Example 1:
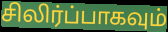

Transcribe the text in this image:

சிலிர்ப்பாகவும்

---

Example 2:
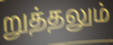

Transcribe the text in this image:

றுத்தலும்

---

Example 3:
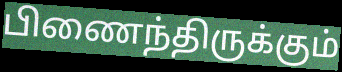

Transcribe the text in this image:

பிணைந்திருக்கும்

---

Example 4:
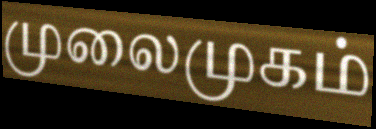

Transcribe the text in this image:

முலைமுகம்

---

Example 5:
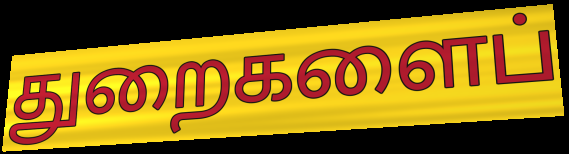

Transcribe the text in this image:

துறைகளைப்